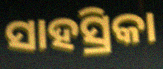
ସାହସ୍ରିକା